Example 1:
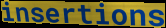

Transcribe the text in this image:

insertions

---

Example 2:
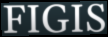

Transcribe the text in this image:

FIGIS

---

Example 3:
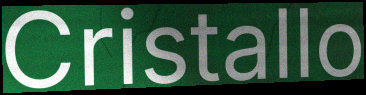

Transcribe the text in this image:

Cristallo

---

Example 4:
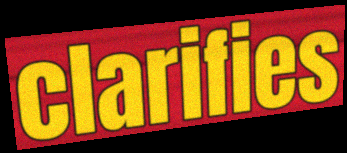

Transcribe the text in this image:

clarifies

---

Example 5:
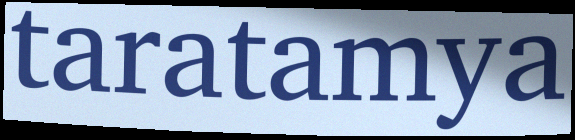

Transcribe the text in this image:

taratamya